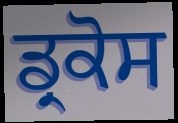
ਡ੍ਰਕੋਸ